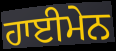
ਹਾਈਮੇਨ